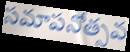
సమాపనోత్సవ